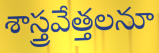
శాస్త్రవేత్తలనూ